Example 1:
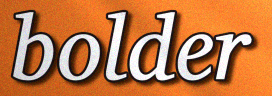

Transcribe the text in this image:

bolder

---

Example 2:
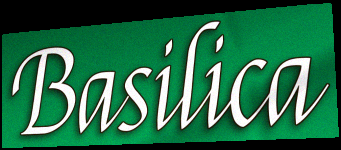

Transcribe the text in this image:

Basilica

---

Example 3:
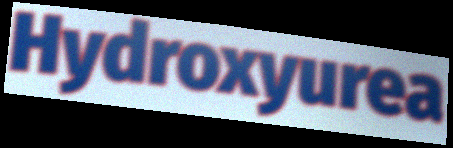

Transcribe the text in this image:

Hydroxyurea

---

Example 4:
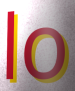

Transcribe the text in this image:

lo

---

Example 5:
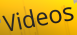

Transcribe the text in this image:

Videos